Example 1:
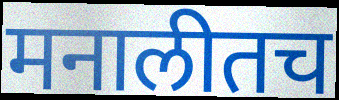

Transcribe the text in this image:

मनालीतच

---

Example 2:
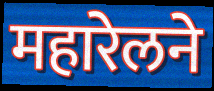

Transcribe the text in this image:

महारेलने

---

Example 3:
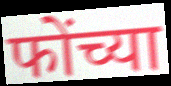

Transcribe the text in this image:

फोंच्या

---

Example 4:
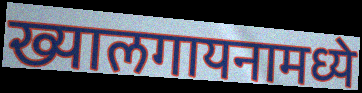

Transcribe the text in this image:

ख्यालगायनामध्ये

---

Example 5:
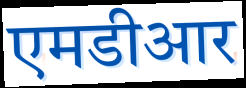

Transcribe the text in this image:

एमडीआर